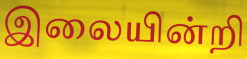
இலையின்றி